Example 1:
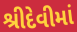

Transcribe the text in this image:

શ્રીદેવીમાં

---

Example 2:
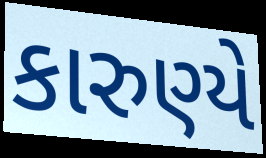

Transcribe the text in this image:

કારુણ્યે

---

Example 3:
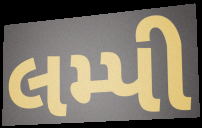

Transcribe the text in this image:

લમ્પી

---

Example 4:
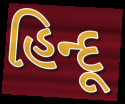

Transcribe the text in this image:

હિન્દૂ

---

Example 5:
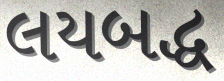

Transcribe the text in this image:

લયબદ્ધ